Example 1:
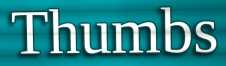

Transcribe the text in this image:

Thumbs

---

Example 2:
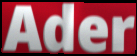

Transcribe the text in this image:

Ader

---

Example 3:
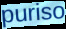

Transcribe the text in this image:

puriso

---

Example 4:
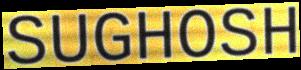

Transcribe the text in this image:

SUGHOSH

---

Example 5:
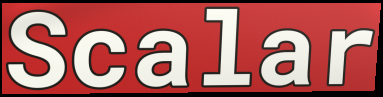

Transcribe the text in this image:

Scalar